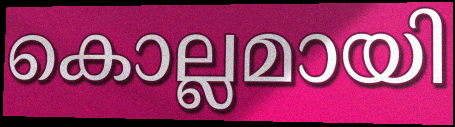
കൊല്ലമായി